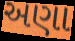
અણા